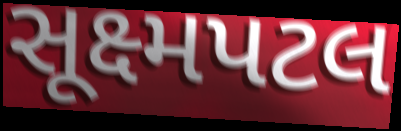
સૂક્ષ્મપટલ